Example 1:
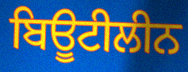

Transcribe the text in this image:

ਬਿਊਟੀਲੀਨ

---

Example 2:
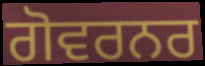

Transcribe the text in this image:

ਗੋਵਰਨਰ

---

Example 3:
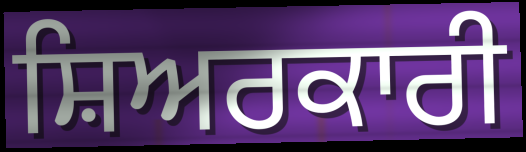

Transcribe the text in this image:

ਸ਼ਿਅਰਕਾਰੀ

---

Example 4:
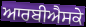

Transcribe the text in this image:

ਆਰਬੀਐਸਕੇ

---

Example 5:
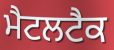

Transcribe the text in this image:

ਮੈਟਲਟੈਕ